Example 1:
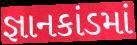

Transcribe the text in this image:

જ્ઞાનકાંડમાં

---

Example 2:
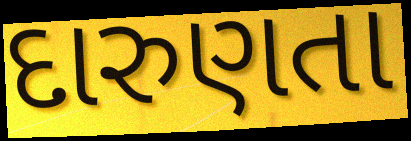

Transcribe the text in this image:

દારુણતા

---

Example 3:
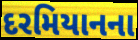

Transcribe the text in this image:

દરમિયાનના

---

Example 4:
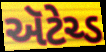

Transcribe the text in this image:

ઍટેચ્ડ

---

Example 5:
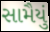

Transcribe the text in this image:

સામૈયું